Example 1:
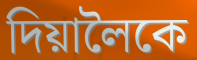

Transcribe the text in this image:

দিয়ালৈকে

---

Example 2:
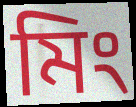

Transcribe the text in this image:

মিং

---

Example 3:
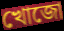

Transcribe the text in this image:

খোজো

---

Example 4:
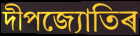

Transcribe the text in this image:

দীপজ্যোতিৰ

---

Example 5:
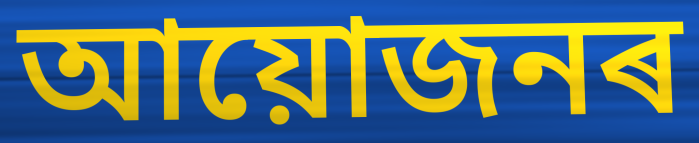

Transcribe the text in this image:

আয়োজনৰ